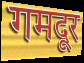
गमदूर